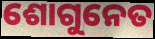
ଶୋଗୁନେତ